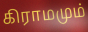
கிராமமும்